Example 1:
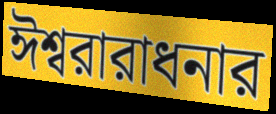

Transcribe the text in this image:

ঈশ্বরারাধনার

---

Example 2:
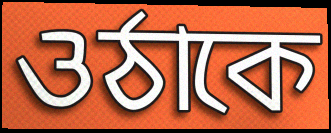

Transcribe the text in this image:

ওঠাকে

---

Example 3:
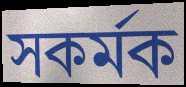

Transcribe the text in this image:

সকর্মক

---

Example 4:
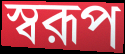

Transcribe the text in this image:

স্বরূপ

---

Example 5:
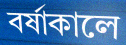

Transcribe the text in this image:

বর্ষাকালে